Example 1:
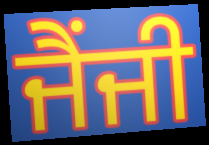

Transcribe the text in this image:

ਜੈਂਜੀ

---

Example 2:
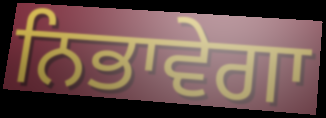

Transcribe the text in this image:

ਨਿਭਾਵੇਗਾ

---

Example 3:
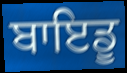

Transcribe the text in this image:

ਬਾਇਡੂ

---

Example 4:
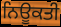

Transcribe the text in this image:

ਨਿਊਕਤੀ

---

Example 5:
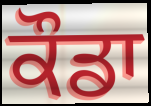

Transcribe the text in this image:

ਕੌਡਾ